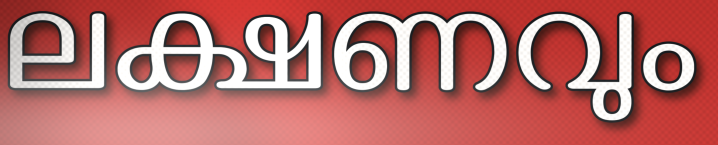
ലക്ഷണവും